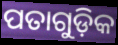
ପତାଗୁଡ଼ିକ